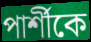
পার্শীকে